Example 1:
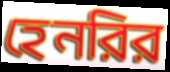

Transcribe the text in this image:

হেনরির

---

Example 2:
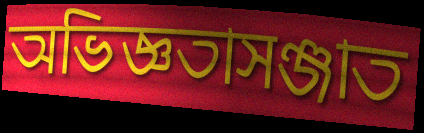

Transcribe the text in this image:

অভিজ্ঞতাসঞ্জাত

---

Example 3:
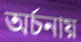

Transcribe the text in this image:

অর্চনায়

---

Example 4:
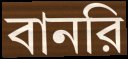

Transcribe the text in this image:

বানরি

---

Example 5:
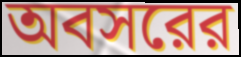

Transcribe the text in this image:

অবসরের